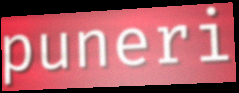
puneri